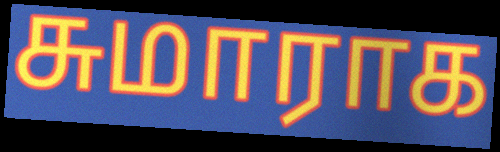
சுமாராக